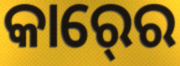
କାର୍‍ରେ